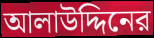
আলাউদ্দিনের